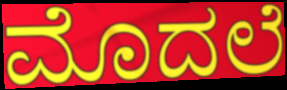
ಮೊದಲೆ